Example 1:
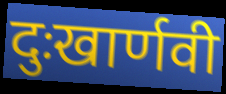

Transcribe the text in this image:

दुःखार्णवी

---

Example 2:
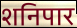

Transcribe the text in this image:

शनिपार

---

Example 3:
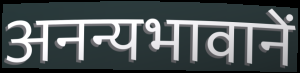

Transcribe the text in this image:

अनन्यभावानें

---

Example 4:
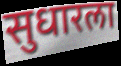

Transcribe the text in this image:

सुधारला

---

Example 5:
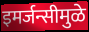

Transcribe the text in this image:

इमर्जन्सीमुळे